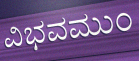
ವಿಭವಮುಂ